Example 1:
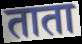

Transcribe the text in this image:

ताता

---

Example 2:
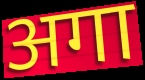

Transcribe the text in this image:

अगा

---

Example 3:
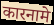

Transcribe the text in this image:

कारनामे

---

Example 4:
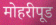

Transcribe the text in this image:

मोहरीपूड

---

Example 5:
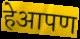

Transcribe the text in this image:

हेआपण